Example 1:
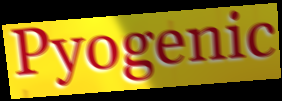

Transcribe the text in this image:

Pyogenic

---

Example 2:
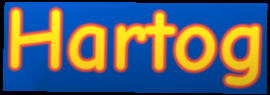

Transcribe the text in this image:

Hartog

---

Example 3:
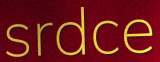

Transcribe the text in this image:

srdce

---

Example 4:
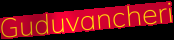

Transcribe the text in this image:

Guduvancheri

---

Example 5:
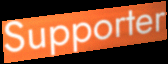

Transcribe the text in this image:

Supporter